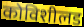
कोविशीलड